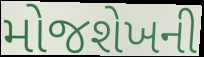
મોજશેખની